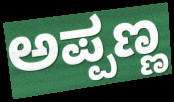
ಅಪ್ಪಣ್ಣ